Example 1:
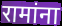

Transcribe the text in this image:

रामांना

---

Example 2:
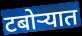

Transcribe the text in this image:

टबोऱ्यात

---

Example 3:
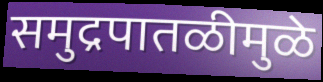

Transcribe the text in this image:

समुद्रपातळीमुळे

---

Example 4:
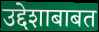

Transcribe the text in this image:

उद्देशाबाबत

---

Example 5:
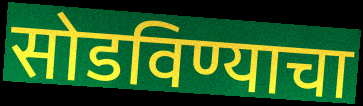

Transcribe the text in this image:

सोडविण्याचा